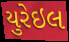
યુરેઇલ